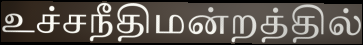
உச்சநீதிமன்றத்தில்